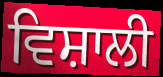
ਵਿਸ਼ਾਲੀ